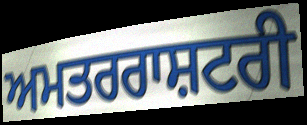
ਅਮਤਰਰਾਸ਼ਟਰੀ